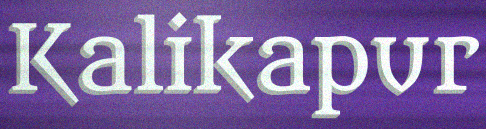
Kalikapur